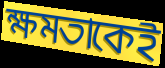
ক্ষমতাকেই